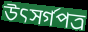
উৎসর্গপত্র